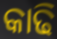
କାଢି